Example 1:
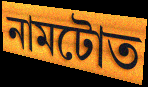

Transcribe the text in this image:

নামটোত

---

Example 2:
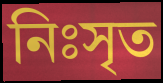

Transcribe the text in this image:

নিঃসৃত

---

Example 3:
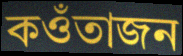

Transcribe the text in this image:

কওঁতাজন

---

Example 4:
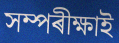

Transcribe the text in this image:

সম্পৰীক্ষাই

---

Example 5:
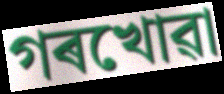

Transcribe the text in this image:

গৰখোৱা